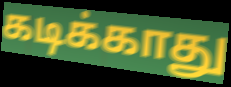
கடிக்காது